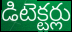
డిటెక్టర్లు